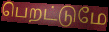
பெறட்டுமே